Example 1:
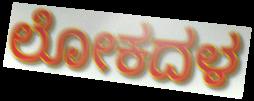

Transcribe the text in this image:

ಲೋಕದಳ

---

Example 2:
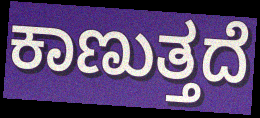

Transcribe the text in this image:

ಕಾಣುತ್ತದೆ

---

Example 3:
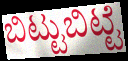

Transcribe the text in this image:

ಬಿಟ್ಟುಬಿಟ್ಟೆ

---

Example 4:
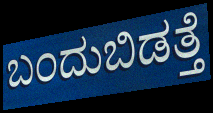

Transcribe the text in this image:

ಬಂದುಬಿಡತ್ತೆ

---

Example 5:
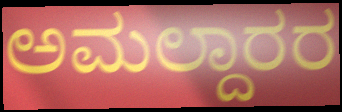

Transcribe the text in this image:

ಅಮಲ್ದಾರರ